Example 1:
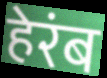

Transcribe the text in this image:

हेरंब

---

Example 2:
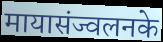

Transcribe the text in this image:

मायासंज्वलनके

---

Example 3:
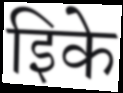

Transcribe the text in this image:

इिके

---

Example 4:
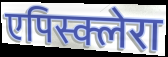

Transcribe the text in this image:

एपिस्क्लेरा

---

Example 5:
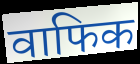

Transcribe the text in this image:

वाफिक